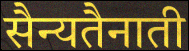
सैन्यतैनाती